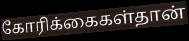
கோரிக்கைகள்தான்